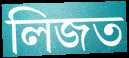
লিজত